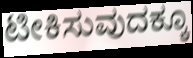
ಟೀಕಿಸುವುದಕ್ಕೂ